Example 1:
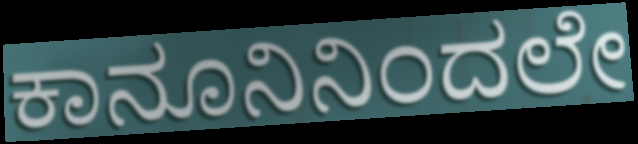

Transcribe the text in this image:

ಕಾನೂನಿನಿಂದಲೇ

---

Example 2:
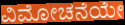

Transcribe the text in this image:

ವಿಮೋಚನೆಯೇ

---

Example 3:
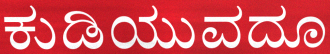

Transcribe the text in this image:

ಕುಡಿಯುವದೂ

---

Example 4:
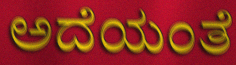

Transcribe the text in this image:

ಅದೆಯಂತೆ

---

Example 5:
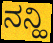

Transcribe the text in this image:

ನನ್ಹಿ